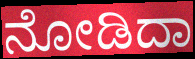
ನೋಡಿದಾ